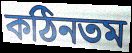
কঠিনতম